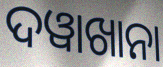
ଦୱାଖାନା